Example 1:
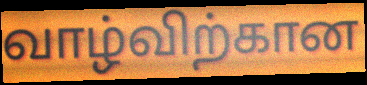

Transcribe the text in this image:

வாழ்விற்கான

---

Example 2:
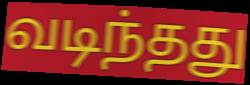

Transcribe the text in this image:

வடிந்தது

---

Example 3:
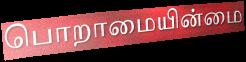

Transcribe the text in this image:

பொறாமையின்மை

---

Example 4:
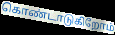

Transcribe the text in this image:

கொண்டாடுகிறோம்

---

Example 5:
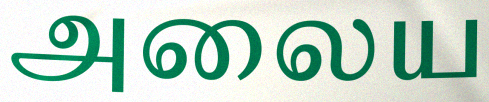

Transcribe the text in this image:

அலைய